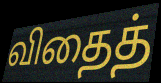
விதைத்